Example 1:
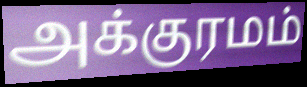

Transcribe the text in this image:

அக்குரமம்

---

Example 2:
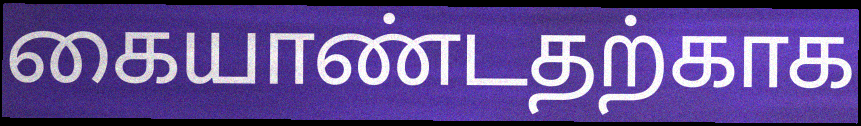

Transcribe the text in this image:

கையாண்டதற்காக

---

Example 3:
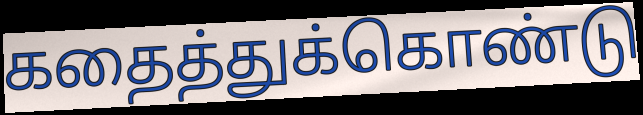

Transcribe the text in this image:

கதைத்துக்கொண்டு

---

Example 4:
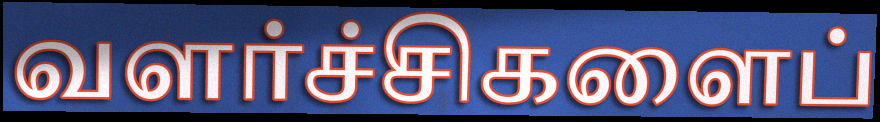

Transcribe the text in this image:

வளர்ச்சிகளைப்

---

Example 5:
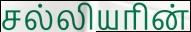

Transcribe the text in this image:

சல்லியரின்